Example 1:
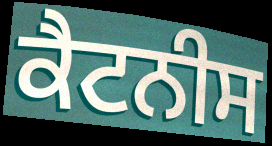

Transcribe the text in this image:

ਕੈਟਨੀਸ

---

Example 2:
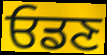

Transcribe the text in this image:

ਓਡਣ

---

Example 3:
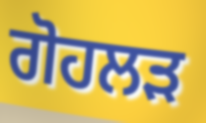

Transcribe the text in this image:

ਗੋਹਲੜ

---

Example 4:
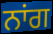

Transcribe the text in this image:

ਨਾਂਗ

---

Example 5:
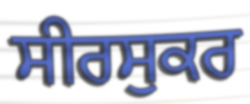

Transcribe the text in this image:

ਸੀਰਸੁਕਰ